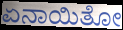
ಏನಾಯಿತೋ